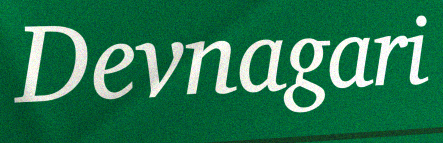
Devnagari